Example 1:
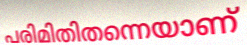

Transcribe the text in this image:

പരിമിതിതന്നെയാണ്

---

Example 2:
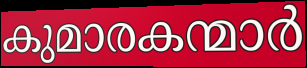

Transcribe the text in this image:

കുമാരകന്മാർ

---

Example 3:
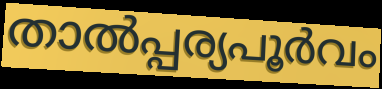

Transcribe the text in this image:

താൽപ്പര്യപൂർവം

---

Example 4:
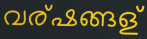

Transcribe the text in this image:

വര്ഷങ്ങള്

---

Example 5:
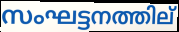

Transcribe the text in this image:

സംഘട്ടനത്തില്